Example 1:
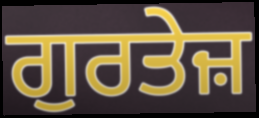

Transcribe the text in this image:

ਗੁਰਤੇਜ਼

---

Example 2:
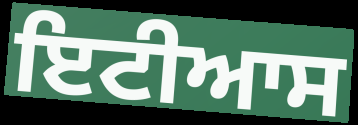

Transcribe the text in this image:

ਇਟੀਆਸ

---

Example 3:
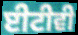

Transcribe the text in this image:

ਈਟੀਵੀ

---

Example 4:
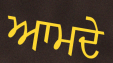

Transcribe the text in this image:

ਆਮਦੇ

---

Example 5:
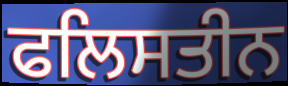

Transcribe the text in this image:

ਫਲਿਸਤੀਨ